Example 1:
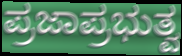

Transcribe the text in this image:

ಪ್ರಜಾಪ್ರಭುತ್ವ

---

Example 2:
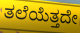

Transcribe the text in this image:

ತಲೆಯೆತ್ತದೇ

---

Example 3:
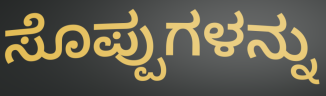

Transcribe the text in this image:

ಸೊಪ್ಪುಗಳನ್ನು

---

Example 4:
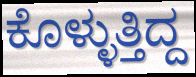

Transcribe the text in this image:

ಕೊಳ್ಳುತ್ತಿದ್ದ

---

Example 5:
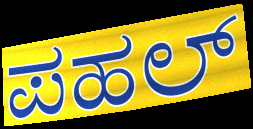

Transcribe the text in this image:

ಪಹಲ್